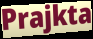
Prajkta